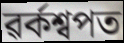
ৱৰ্কশ্বপত